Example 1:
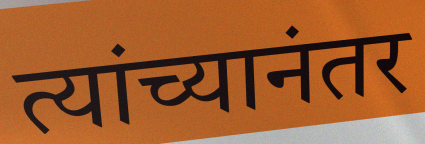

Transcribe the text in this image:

त्यांच्यानंतर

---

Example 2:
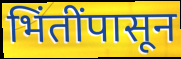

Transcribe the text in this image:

भिंतींपासून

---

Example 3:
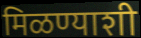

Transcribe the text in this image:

मिळण्याशी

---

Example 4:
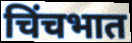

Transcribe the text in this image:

चिंचभात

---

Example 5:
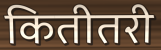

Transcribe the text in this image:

कितीतरी